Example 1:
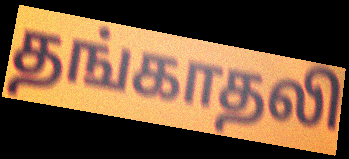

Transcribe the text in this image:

தங்காதலி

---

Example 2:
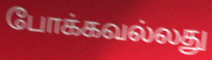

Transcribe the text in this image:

போக்கவல்லது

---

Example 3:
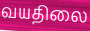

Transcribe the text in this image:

வயதிலை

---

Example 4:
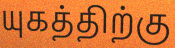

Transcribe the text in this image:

யுகத்திற்கு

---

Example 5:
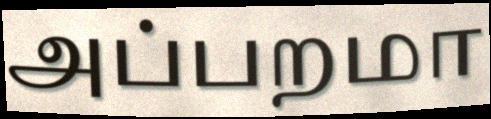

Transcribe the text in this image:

அப்பறமா